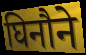
घिनौने